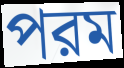
পরম